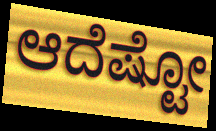
ಆದೆಷ್ಟೋ